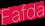
Fafda